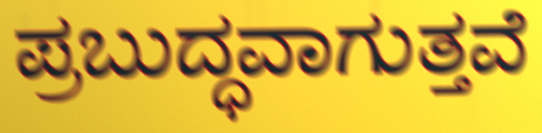
ಪ್ರಬುದ್ಧವಾಗುತ್ತವೆ